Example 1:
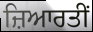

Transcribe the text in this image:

ਜ਼ਿਆਰਤੀਂ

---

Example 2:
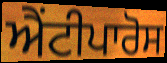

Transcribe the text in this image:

ਐਂਟੀਪਾਰੋਸ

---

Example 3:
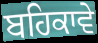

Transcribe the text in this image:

ਬਹਿਕਾਵੇ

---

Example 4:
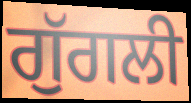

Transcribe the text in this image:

ਗੁੱਗਲੀ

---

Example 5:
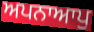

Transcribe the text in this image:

ਅਪਨਾਆਪੁ